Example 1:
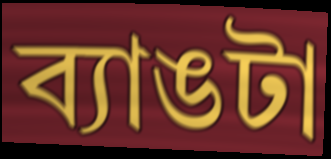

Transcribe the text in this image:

ব্যাঙটা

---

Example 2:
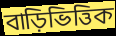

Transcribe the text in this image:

বাড়িভিত্তিক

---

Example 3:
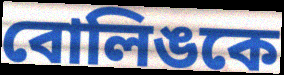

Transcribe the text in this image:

বোলিঙকে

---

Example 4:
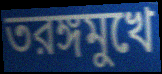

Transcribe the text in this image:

তরঙ্গমুখে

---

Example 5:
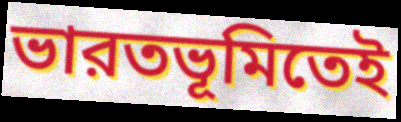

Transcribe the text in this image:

ভারতভূমিতেই